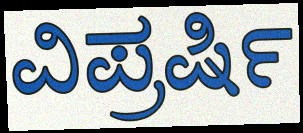
ವಿಪ್ರರ್ಷಿ